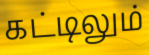
கட்டிலும்